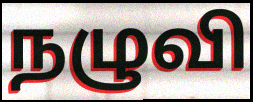
நழுவி